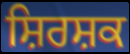
ਸ਼ਿਰਸ਼ਕ